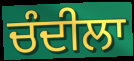
ਚੰਦੀਲਾ